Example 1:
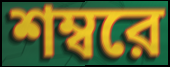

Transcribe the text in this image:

শম্বরে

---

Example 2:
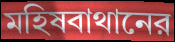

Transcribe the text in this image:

মহিষবাথানের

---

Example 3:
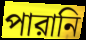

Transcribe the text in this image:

পারানি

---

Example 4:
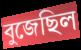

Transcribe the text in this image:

বুজেছিল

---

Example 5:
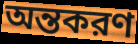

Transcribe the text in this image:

অন্তকরণ